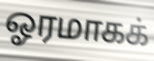
ஓரமாகக்